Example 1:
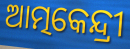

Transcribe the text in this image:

ଆତ୍ମକେନ୍ଦ୍ରୀ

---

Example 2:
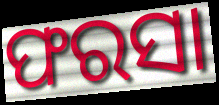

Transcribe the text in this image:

ଫରସା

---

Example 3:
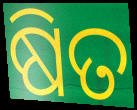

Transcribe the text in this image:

ଷିତ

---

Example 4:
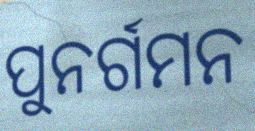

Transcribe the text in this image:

ପୁନର୍ଗମନ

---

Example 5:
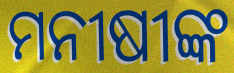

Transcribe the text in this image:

ମନୀଷୀଙ୍କ